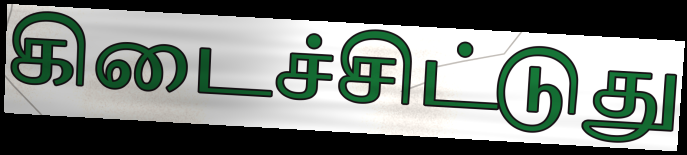
கிடைச்சிட்டுது